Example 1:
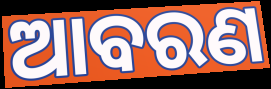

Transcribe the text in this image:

ଆବରଣ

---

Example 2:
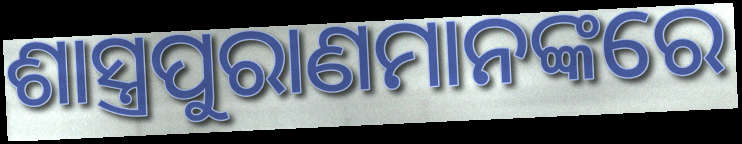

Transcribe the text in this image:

ଶାସ୍ତ୍ରପୁରାଣମାନଙ୍କରେ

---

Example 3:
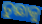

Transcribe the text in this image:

ତୁଛାକୁ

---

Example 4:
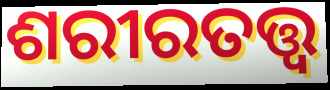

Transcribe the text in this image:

ଶରୀରତତ୍ତ୍ୱ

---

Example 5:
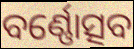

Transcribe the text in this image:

ବର୍ଣ୍ଣୋତ୍ସବ